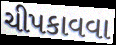
ચીપકાવવા